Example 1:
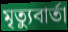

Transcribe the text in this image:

মৃত্যুবার্তা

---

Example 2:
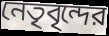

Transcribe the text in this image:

নেতৃবৃন্দের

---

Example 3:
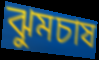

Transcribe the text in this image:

ঝুমচাষ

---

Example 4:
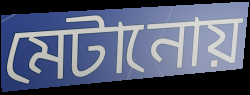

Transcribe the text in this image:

মেটানোয়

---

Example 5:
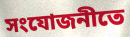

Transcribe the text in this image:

সংযোজনীতে